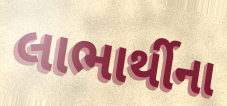
લાભાર્થીના